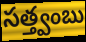
సత్త్వంబు